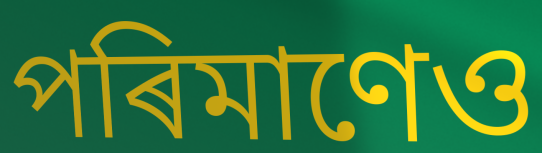
পৰিমাণেও